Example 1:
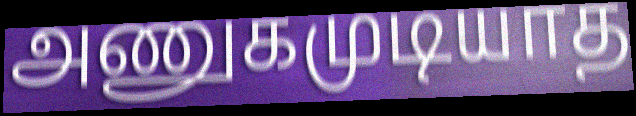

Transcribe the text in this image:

அணுகமுடியாத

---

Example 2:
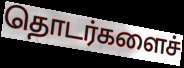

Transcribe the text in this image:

தொடர்களைச்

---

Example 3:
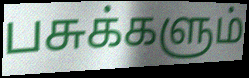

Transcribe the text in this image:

பசுக்களும்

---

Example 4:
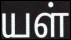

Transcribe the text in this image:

யள்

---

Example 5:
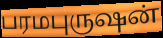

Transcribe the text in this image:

பரமபுருஷன்